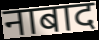
नाबाद